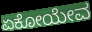
ಏಕೋಯೇವ